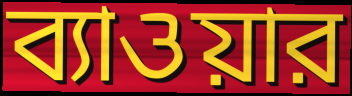
ব্যাওয়ার